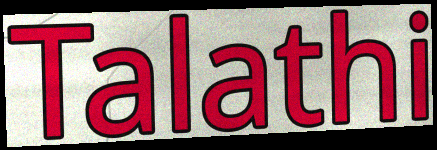
Talathi